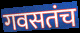
गवसतंच